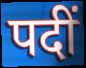
पदीं